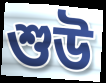
শুউ